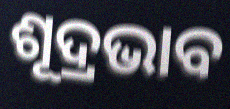
ଶୂଦ୍ରଭାବ